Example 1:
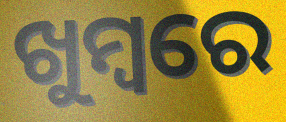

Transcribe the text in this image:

ଖୁମ୍ବରେ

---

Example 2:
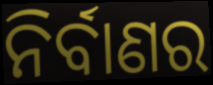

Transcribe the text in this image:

ନିର୍ବାଣର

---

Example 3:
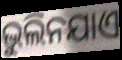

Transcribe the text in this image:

ଭୁଲିନଯାଏ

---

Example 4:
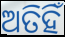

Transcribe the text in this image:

ଅତିହିଁ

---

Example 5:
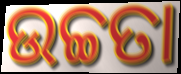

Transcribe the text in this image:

ଉଚ୍ଚତା